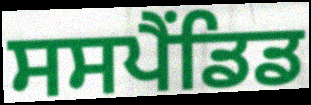
ਸਸਪੈਂਡਿਡ